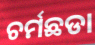
ଚର୍ମଛଡା